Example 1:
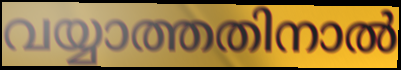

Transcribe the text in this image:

വയ്യാത്തതിനാൽ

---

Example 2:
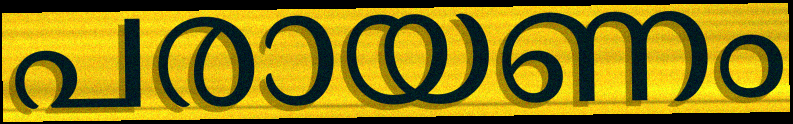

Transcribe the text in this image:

പരായണം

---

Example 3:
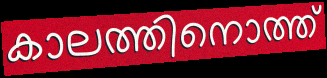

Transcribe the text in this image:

കാലത്തിനൊത്ത്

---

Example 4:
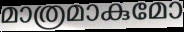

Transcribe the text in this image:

മാത്രമാകുമോ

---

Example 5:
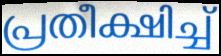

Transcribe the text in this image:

പ്രതീക്ഷിച്ച്